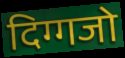
दिग्गजो